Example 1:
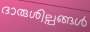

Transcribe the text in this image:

ദാരുശില്പങ്ങൾ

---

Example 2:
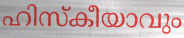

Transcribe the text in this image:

ഹിസ്കീയാവും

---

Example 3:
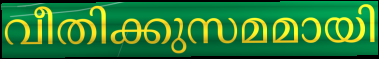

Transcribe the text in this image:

വീതിക്കുസമമായി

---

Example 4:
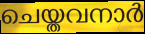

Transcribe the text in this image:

ചെയ്തവനാർ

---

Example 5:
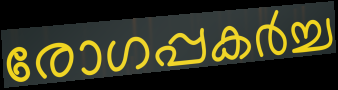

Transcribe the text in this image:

രോഗപ്പകർച്ച